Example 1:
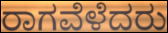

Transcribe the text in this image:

ರಾಗವೆಳೆದರು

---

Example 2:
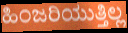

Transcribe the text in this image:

ಹಿಂಜರಿಯುತ್ತಿಲ್ಲ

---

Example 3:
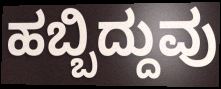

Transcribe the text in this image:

ಹಬ್ಬಿದ್ದುವು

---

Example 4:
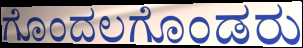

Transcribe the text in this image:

ಗೊಂದಲಗೊಂಡರು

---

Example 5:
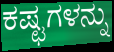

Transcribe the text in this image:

ಕಷ್ಟಗಳನ್ನು